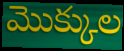
మొక్కుల